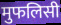
मुफलिसी